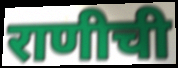
राणीची